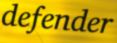
defender